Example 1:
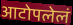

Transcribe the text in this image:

आटोपलेलं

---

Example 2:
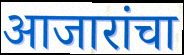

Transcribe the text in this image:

आजारांचा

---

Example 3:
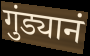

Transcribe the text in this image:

गुंड्यानं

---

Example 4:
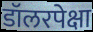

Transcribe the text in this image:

डॉलरपेक्षा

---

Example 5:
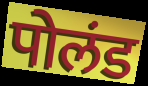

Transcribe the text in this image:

पोलंड